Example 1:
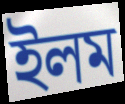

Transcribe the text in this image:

ইলম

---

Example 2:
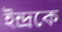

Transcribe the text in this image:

ইন্দ্রকে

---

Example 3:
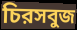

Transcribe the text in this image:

চিরসবুজ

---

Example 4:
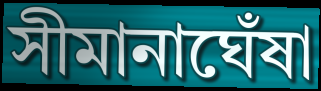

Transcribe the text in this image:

সীমানাঘেঁষা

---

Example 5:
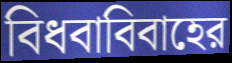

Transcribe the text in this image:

বিধবাবিবাহের